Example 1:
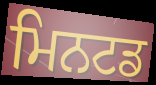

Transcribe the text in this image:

ਮਿਨਟਡ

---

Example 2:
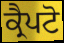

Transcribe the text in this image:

ਕ੍ਰੈਪਟੋ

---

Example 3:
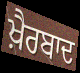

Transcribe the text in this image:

ਖ਼ੈਰਬਾਦ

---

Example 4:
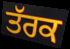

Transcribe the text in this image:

ਤੱਰਕ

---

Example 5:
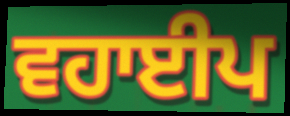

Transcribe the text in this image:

ਵਹਾਈਪ